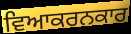
ਵਿਆਕਰਨਕਾਰ